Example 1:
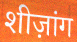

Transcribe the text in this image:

शीज़ांग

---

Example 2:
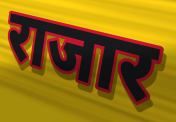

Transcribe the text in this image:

राजार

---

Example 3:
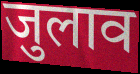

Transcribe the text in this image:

जुलाव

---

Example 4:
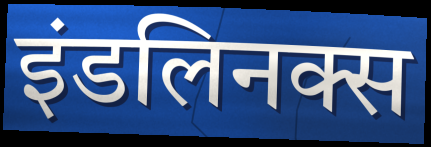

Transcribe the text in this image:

इंडलिनक्स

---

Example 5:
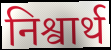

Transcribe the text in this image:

निश्वार्थ